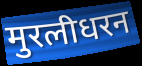
मुरलीधरन